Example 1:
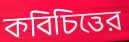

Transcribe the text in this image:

কবিচিত্তের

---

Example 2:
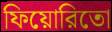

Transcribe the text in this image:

ফিয়োরিতো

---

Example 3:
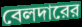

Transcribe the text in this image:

বেলদারের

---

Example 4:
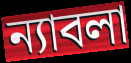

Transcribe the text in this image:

ন্যাবলা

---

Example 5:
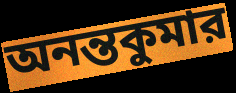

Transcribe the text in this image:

অনন্তকুমার